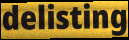
delisting